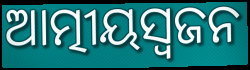
ଆତ୍ମୀୟସ୍ୱଜନ